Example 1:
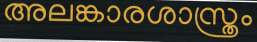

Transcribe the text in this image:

അലങ്കാരശാസ്ത്രം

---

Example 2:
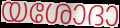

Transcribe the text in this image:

യശോദാ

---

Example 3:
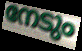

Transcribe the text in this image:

നേടും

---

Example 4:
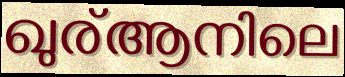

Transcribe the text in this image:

ഖുര്ആനിലെ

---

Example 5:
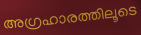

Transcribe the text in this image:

അഗ്രഹാരത്തിലൂടെ